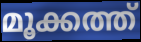
മൂക്കത്ത്